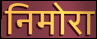
निमोरा